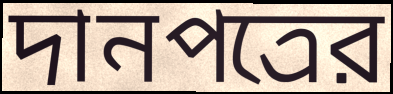
দানপত্রের